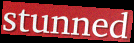
stunned